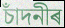
চাঁদনীৰ